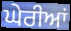
ਘੇਰੀਆਂ